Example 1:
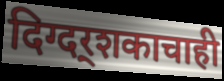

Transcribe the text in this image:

दिग्दर्शकाचाही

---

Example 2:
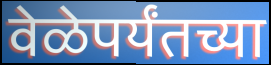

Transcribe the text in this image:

वेळेपर्यंतच्या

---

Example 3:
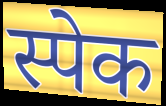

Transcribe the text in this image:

स्पेक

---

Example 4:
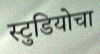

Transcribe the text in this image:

स्टुडियोचा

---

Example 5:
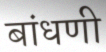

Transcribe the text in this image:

बांधणी